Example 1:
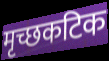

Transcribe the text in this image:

मृच्छकटिक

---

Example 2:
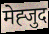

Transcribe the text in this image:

मेह्जुद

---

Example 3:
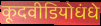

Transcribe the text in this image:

कूदवीडियोधंधे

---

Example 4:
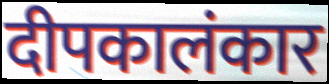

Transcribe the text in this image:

दीपकालंकार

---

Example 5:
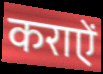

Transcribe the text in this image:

कराऐं